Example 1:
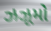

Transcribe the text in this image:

ઝઝૂમો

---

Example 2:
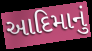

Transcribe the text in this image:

આદિમાનું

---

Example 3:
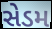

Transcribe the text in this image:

સેડમ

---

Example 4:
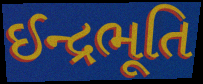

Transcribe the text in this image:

ઈન્દ્રભૂતિ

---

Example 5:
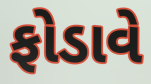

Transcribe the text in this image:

ફોડાવે